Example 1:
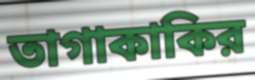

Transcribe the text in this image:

তাগাকাকির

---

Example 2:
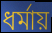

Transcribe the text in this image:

ধর্মায়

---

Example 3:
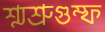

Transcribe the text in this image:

শ্মশ্রুগুম্ফ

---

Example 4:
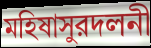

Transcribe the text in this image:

মহিষাসুরদলনী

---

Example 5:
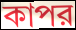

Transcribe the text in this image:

কাপর